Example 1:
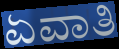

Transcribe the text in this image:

ಏವಾತಿ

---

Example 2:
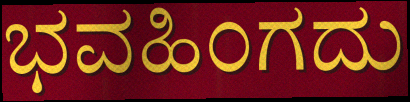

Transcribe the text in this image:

ಭವಹಿಂಗದು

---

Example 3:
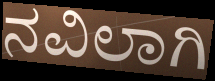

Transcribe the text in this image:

ನವಿಲಾಗಿ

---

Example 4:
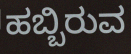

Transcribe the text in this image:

ಹಬ್ಬಿರುವ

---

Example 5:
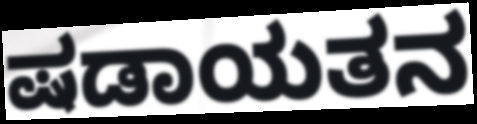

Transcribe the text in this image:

ಷಡಾಯತನ